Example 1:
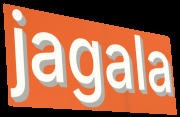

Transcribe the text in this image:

jagala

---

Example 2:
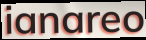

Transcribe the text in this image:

ianareo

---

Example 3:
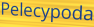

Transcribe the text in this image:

Pelecypoda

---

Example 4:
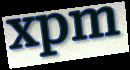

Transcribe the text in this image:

xpm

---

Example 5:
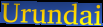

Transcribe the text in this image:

Urundai